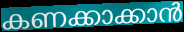
കണക്കാക്കാൻ